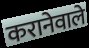
करानेवाले